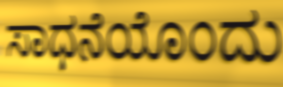
ಸಾಧನೆಯೊಂದು